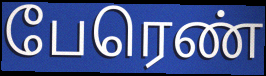
பேரெண்